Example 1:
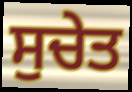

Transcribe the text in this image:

ਸੁਚੇਤ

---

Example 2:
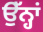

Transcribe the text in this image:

ਉੱਨ੍ਹਾਂ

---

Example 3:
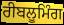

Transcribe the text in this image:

ਰੀਬਲੂਮਿੰਗ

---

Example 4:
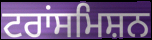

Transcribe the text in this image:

ਟਰਾਂਸਮਿਸ਼ਨ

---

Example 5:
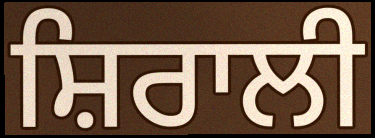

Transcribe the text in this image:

ਸ਼ਿਰਾਲੀ